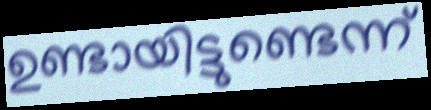
ഉണ്ടായിട്ടുണ്ടെന്ന്